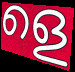
ളെ